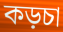
কড়চা